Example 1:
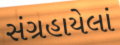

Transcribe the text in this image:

સંગ્રહાયેલાં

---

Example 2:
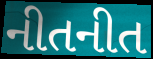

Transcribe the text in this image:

નીતનીત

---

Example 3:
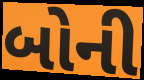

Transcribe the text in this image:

બોની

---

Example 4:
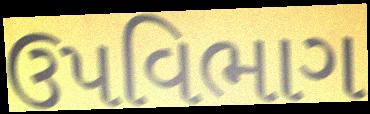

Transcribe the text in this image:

ઉપવિભાગ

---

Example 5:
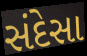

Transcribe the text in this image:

સંદેસા